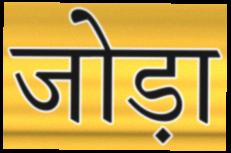
जोड़ा